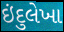
ઇંદુલેખા